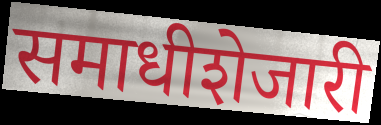
समाधीशेजारी